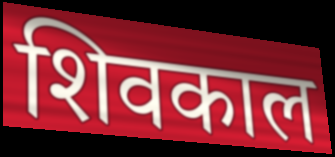
शिवकाल